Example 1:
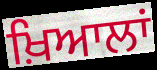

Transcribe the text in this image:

ਖ਼ਿਆਲਾਂ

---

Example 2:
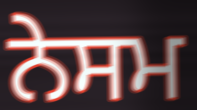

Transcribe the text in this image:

ਨੇਸਮ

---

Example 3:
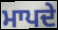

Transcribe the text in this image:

ਮਾਪਦੇ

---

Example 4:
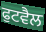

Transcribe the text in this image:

ਫੁਟਵੈਲ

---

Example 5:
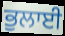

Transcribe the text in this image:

ਭੁਲਾਈ